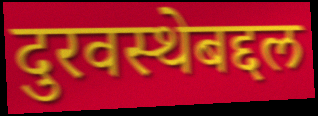
दुरवस्थेबद्दल